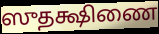
ஸுதக்ஷிணை